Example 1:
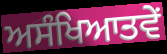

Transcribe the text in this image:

ਅਸੰਖਿਆਤਵੇਂ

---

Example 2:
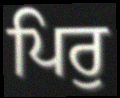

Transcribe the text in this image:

ਪਿਰੁ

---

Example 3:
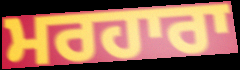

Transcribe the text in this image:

ਮਰਹਾਰਾ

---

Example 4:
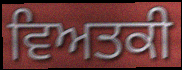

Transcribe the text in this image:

ਵਿਅਤਕੀ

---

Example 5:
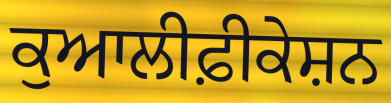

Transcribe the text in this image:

ਕੁਆਲੀਫ਼ੀਕੇਸ਼ਨ